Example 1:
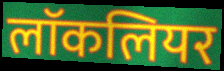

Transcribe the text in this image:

लॉकलियर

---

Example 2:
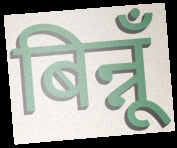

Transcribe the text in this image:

बिन्नूँ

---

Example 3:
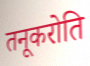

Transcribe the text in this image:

तनूकरोति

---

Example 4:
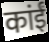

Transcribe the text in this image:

कांईं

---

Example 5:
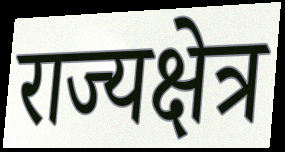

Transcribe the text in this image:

राज्यक्षेत्र